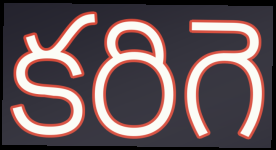
కరిగె